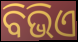
ବିଭିଏ